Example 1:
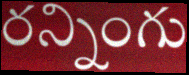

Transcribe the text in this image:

రన్నింగు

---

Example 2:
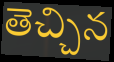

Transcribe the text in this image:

తెచ్చిన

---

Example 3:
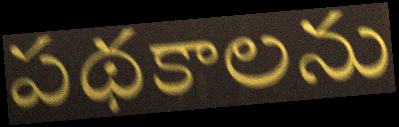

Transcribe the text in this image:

పథకాలను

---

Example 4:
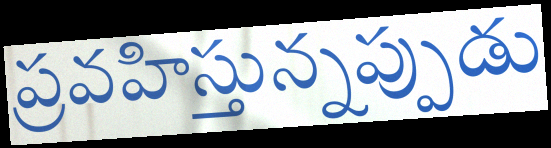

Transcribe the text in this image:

ప్రవహిస్తున్నప్పుడు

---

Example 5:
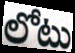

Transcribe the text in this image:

లోటు